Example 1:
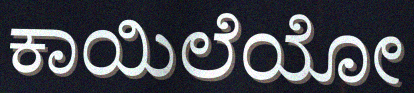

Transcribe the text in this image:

ಕಾಯಿಲೆಯೋ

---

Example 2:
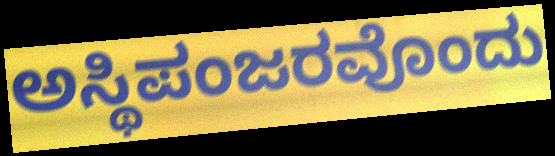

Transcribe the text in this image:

ಅಸ್ಥಿಪಂಜರವೊಂದು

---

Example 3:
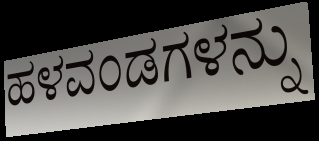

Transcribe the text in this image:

ಹಳವಂಡಗಳನ್ನು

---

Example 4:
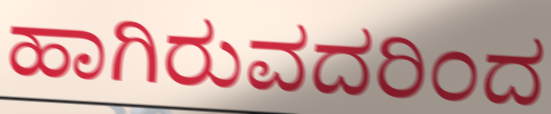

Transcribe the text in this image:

ಹಾಗಿರುವದರಿಂದ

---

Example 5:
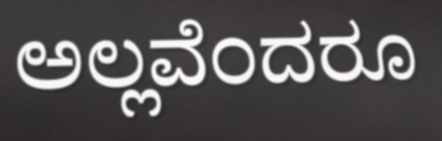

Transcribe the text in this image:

ಅಲ್ಲವೆಂದರೂ